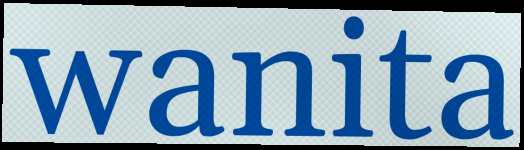
wanita